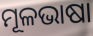
ମୂଳଭାଷା